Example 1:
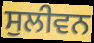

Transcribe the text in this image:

ਸੁਲੀਵਨ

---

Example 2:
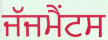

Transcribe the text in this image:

ਜੱਜਮੈਂਟਸ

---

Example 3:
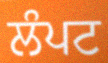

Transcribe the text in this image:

ਲੰਪਟ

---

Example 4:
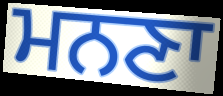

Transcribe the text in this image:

ਮਨਣਾ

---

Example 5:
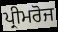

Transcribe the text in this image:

ਪ੍ਰੀਮਰੋਜ